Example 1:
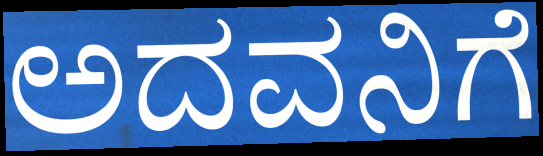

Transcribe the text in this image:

ಅದವನಿಗೆ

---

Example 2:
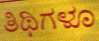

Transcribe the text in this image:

ತಿಥಿಗಳೂ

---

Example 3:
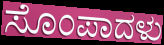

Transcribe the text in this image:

ಸೊಂಪಾದಳು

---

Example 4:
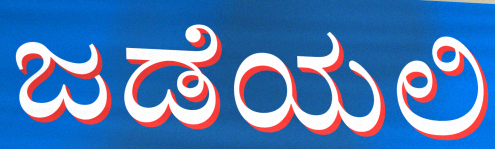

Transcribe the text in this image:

ಜಡೆಯಲಿ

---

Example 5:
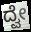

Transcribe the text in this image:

ದ್ವೇ